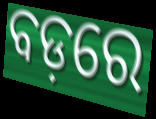
ବଡ଼ରେ